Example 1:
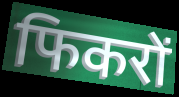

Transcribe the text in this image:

फिकरों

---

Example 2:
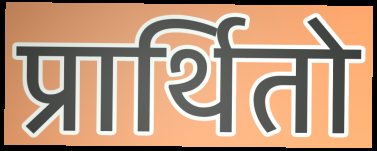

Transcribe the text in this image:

प्रार्थितो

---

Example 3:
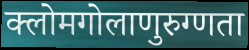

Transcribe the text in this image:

क्लोमगोलाणुरुग्णता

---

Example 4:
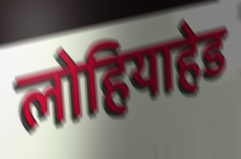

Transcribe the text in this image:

लोहियाहेड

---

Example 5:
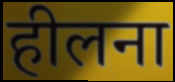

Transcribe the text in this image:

हीलना